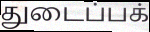
துடைப்பக்